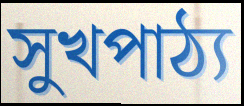
সুখপাঠ্য